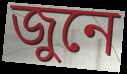
জুনে